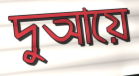
দুআয়ে